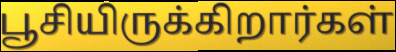
பூசியிருக்கிறார்கள்